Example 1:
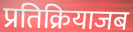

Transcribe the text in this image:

प्रतिक्रियाजब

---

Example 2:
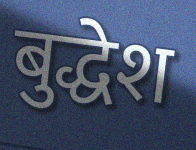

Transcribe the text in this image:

बुद्धेश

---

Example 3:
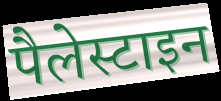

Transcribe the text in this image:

पैलेस्टाइन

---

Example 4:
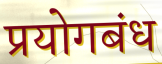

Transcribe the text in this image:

प्रयोगबंध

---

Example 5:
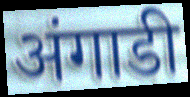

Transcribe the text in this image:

अंगाडी